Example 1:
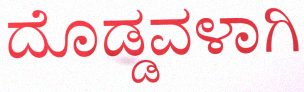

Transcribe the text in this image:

ದೊಡ್ಡವಳಾಗಿ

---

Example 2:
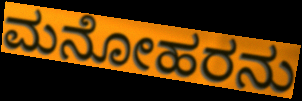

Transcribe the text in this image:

ಮನೋಹರನು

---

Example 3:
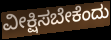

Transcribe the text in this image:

ವೀಕ್ಷಿಸಬೇಕೆಂದು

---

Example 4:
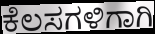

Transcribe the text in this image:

ಕೆಲಸಗಳಿಗಾಗಿ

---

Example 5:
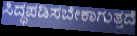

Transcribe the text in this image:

ಸಿದ್ಧಪಡಿಸಬೇಕಾಗುತ್ತದೆ